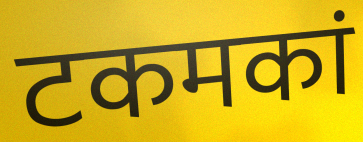
टकमकां